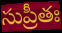
సుప్రీతః